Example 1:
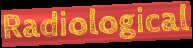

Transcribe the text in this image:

Radiological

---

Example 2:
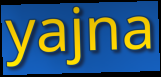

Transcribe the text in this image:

yajna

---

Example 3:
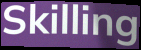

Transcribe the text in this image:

Skilling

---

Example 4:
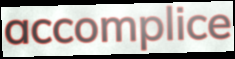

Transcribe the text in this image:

accomplice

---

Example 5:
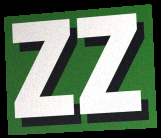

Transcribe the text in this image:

ZZ